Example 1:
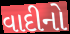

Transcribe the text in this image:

વાદીનો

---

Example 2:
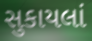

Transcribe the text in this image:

સુકાયલાં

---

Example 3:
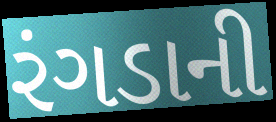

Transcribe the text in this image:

રંગડાની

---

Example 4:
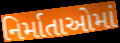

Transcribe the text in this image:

નિર્માતાઓમાં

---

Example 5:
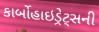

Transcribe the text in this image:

કાર્બોહાઇડ્રેટ્સની